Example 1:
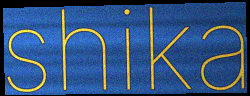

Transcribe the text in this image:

shika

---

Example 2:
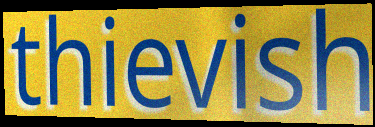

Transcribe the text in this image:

thievish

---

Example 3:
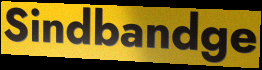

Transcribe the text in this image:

Sindbandge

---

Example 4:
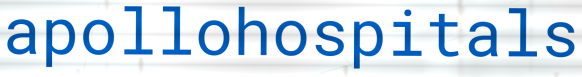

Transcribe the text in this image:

apollohospitals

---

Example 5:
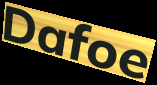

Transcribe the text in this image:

Dafoe